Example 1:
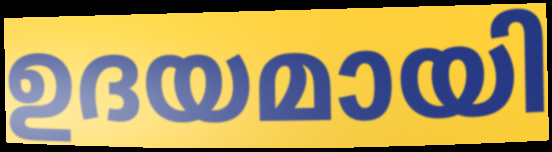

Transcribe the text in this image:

ഉദയമായി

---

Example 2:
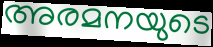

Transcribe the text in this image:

അരമനയുടെ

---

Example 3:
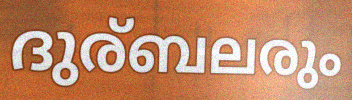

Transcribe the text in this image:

ദുര്ബലരും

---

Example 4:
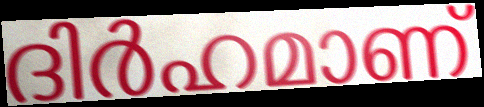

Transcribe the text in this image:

ദിർഹമാണ്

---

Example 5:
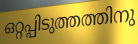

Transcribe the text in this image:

ഒറ്റപ്പിടുത്തത്തിനു